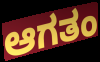
ಆಗತಂ